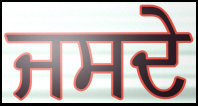
ਜਸਦੇ